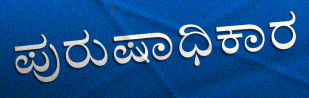
ಪುರುಷಾಧಿಕಾರ